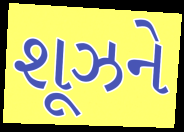
શૂઝને